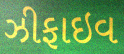
ઝીફાઇવ